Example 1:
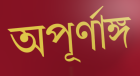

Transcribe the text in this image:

অপূর্ণাঙ্গ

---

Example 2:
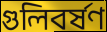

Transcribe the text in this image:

গুলিবর্ষণ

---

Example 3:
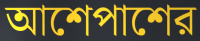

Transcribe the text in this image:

আশেপাশের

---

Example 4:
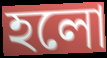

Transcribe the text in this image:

হলো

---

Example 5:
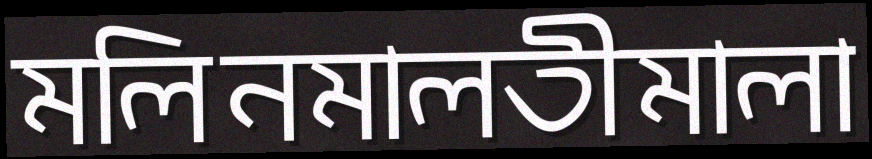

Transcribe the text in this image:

মলিনমালতীমালা